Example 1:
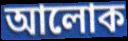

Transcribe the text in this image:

আলোক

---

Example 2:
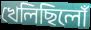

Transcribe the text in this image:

খেলিছিলোঁ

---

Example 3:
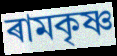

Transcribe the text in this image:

ৰামকৃষ্ণ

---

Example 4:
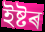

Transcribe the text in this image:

ইষ্টৰ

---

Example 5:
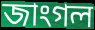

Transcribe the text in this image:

জাংগল